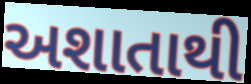
અશાતાથી